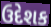
ઉદેશક